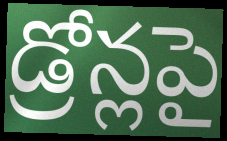
డ్రోన్లపై